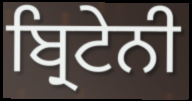
ਬ੍ਰਿਟੇਨੀ